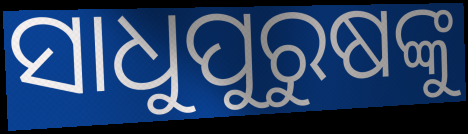
ସାଧୁପୁରୁଷଙ୍କୁ